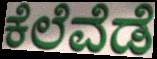
ಕೆಲೆವೆಡೆ